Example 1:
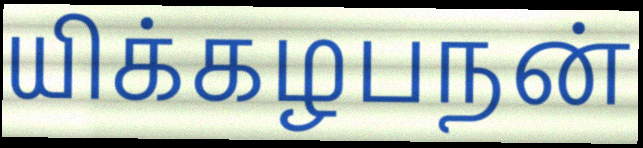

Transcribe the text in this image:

யிக்கழபநன்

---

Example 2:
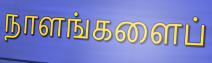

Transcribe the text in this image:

நாளங்களைப்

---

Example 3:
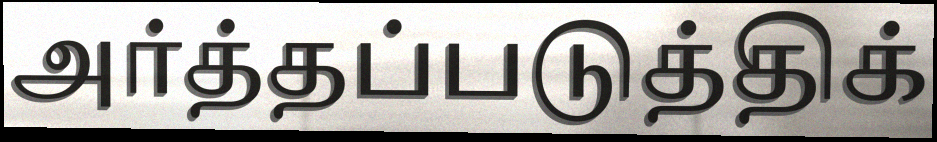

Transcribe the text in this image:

அர்த்தப்படுத்திக்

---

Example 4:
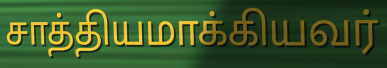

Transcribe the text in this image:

சாத்தியமாக்கியவர்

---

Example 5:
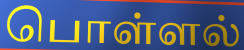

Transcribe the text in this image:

பொள்ளல்